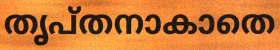
തൃപ്തനാകാതെ